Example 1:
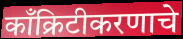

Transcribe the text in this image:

काँक्रिटीकरणाचे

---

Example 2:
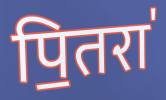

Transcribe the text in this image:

पि॒तरा॑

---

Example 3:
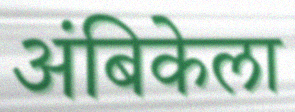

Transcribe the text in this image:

अंबिकेला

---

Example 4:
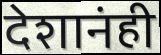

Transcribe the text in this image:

देशानंही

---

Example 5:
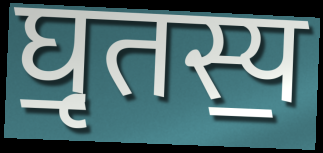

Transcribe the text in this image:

घृ॒तस्य॒